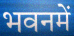
भवनमें